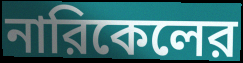
নারিকেলের